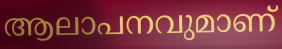
ആലാപനവുമാണ്